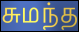
சுமந்த